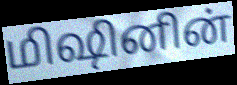
மிஷினின்